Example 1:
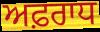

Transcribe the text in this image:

ਅਫ਼ਰਾਧ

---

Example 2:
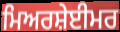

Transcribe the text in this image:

ਮਿਅਰਸ਼ੇਈਮਰ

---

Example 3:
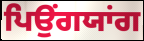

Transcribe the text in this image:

ਪਿਉਂਗਯਾਂਗ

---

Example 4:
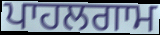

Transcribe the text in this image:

ਪਾਹਲਗਾਮ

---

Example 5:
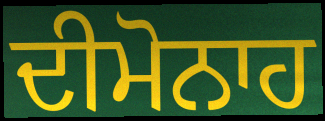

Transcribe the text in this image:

ਦੀਮੋਨਾਹ